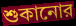
শুকানোর